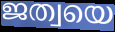
ജത്വയെ